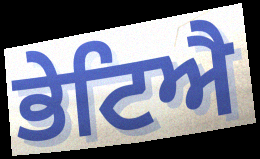
ਭੇਟਿਐ